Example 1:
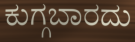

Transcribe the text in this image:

ಕುಗ್ಗಬಾರದು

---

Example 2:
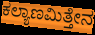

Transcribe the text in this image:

ಕಲ್ಯಾಣಮಿತ್ತೇನ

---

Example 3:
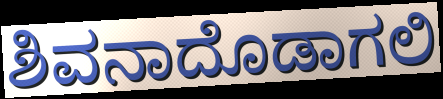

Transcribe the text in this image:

ಶಿವನಾದೊಡಾಗಲಿ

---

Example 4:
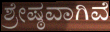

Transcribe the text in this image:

ಶ್ರೇಷ್ಠವಾಗಿವೆ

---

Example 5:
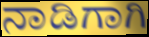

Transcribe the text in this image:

ನಾಡಿಗಾಗಿ